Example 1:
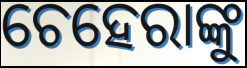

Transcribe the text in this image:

ଚେହେରାଙ୍କୁ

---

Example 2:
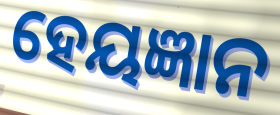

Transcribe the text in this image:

ହେୟଜ୍ଞାନ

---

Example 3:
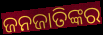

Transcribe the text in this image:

ଜନଜାତିଙ୍କର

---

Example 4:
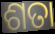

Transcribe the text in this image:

ଶତା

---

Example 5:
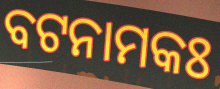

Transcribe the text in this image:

ବଟନାମକଃ